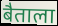
बैताला